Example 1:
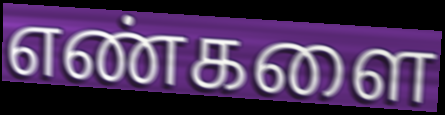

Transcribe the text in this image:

எண்களை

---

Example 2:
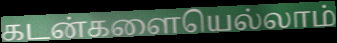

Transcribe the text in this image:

கடன்களையெல்லாம்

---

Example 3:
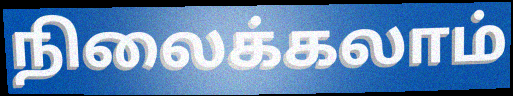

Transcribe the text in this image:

நிலைக்கலாம்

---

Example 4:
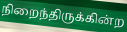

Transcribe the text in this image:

நிறைந்திருக்கின்ற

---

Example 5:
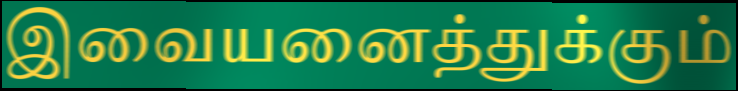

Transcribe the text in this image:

இவையனைத்துக்கும்